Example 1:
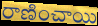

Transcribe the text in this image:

రాణించాయి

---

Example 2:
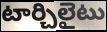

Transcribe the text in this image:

టార్చిలైటు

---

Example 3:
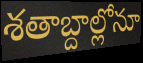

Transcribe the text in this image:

శతాబ్దాల్లోనూ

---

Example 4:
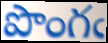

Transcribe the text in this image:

పొంగఁ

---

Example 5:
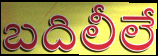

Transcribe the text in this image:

బదిలీలే